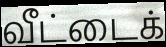
வீட்டைக்